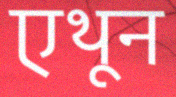
एथून